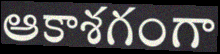
ఆకాశగంగా